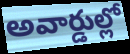
అవార్డుల్లో